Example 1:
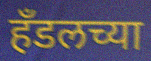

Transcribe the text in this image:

हँडलच्या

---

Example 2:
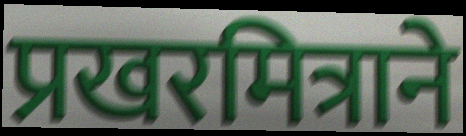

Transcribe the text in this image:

प्रखरमित्राने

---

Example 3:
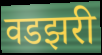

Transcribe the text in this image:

वडझरी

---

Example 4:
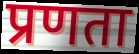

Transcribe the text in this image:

प्रणता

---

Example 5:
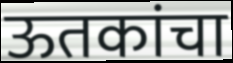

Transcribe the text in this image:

ऊतकांचा